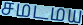
சமடமய